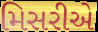
મિસરીએ